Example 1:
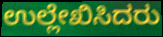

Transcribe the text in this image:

ಉಲ್ಲೇಖಿಸಿದರು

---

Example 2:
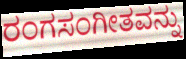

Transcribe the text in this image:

ರಂಗಸಂಗೀತವನ್ನು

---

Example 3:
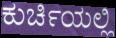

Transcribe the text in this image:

ಕುರ್ಚಿಯಲ್ಲಿ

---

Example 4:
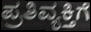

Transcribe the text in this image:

ಪ್ರತಿವ್ಯಕ್ತಿಗೆ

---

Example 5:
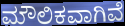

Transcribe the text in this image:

ಮೌಲಿಕವಾಗಿವೆ